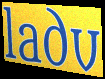
ladu